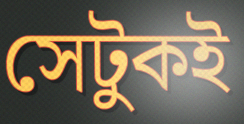
সেটুকই